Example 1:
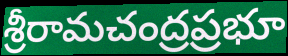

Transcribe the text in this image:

శ్రీరామచంద్రప్రభూ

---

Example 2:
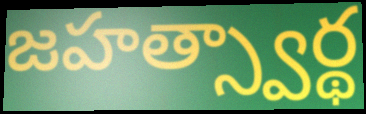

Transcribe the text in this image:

జహత్స్వార్థ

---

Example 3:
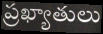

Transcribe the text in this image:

ప్రఖ్యాతులు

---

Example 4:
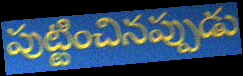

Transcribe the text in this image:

పుట్టించినప్పుడు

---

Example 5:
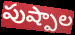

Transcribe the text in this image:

పుష్పాల